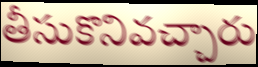
తీసుకొనివచ్చారు